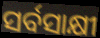
ସର୍ବସାକ୍ଷୀ